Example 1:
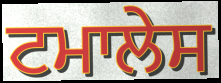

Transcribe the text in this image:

ਟਮਾਲੇਸ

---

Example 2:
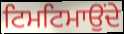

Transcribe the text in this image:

ਟਿਮਟਿਮਾਉਂਦੇ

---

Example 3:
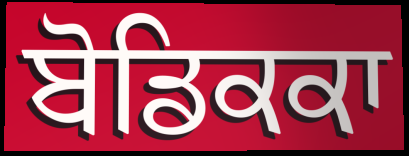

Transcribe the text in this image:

ਬੋਡਿਕਕਾ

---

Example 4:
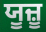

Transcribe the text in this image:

ਯੂਜ਼ੂ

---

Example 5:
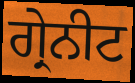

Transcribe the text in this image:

ਗ੍ਰੇਨੀਟ